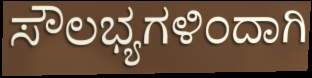
ಸೌಲಭ್ಯಗಳಿಂದಾಗಿ